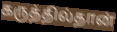
கருத்தில்தான்